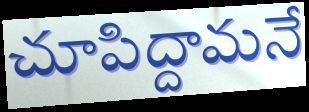
చూపిద్దామనే